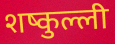
शष्कुल्ली